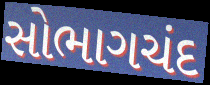
સોભાગચંદ